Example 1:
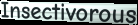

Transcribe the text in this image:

Insectivorous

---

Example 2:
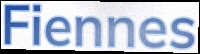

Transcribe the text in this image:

Fiennes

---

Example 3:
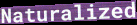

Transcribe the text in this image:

Naturalized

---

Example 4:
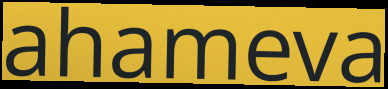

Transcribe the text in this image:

ahameva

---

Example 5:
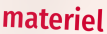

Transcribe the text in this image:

materiel